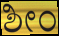
ಶೀಂ